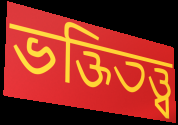
ভক্তিতত্ত্ব